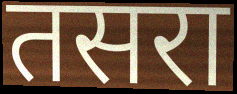
तसरा